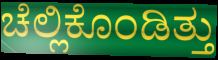
ಚೆಲ್ಲಿಕೊಂಡಿತ್ತು